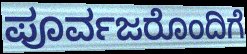
ಪೂರ್ವಜರೊಂದಿಗೆ